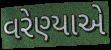
વરેણ્યાએ